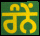
ਰੰਨੇਂ